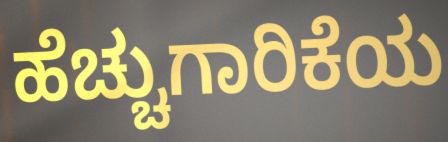
ಹೆಚ್ಚುಗಾರಿಕೆಯ